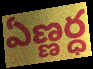
ఏణ్ణర్ధ